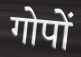
गोपों